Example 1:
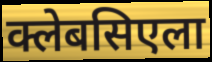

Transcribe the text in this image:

क्लेबसिएला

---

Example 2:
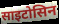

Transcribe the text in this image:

साइटोसिन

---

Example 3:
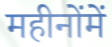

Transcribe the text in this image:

महीनोंमें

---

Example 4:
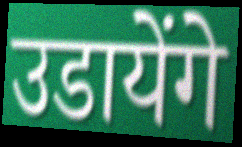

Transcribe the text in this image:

उडायेंगे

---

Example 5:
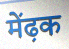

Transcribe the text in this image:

मेंढ़क